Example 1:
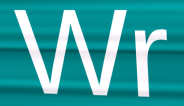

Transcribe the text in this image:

Wr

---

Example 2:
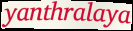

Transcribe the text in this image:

yanthralaya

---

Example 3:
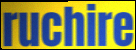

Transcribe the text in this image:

ruchire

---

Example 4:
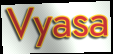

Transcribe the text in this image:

Vyasa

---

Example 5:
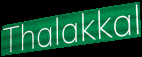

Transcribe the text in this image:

Thalakkal